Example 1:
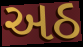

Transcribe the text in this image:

અઠ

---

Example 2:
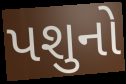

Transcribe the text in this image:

પશુનો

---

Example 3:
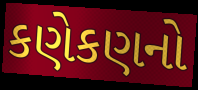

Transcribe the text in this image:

કણેકણનો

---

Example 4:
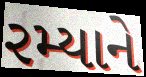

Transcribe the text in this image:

રમ્યાને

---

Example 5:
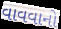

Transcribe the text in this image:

વાવવાનો